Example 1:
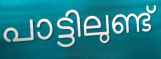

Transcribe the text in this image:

പാട്ടിലുണ്ട്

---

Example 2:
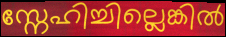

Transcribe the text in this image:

സ്നേഹിച്ചില്ലെങ്കിൽ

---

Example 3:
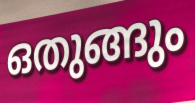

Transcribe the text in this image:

ഒതുങ്ങും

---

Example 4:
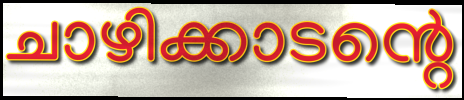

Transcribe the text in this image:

ചാഴിക്കാടന്റെ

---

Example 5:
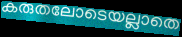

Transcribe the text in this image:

കരുതലോടെയല്ലാതെ